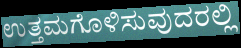
ಉತ್ತಮಗೊಳಿಸುವುದರಲ್ಲಿ